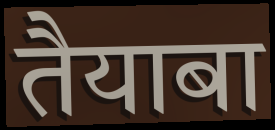
तैयाबा